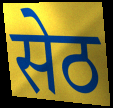
सेठ